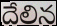
దేలిన